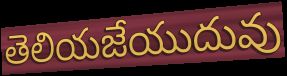
తెలియజేయుదువు